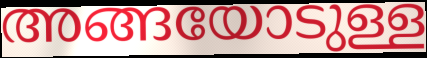
അങ്ങയോടുള്ള